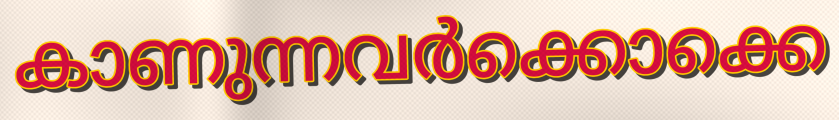
കാണുന്നവർക്കൊക്കെ